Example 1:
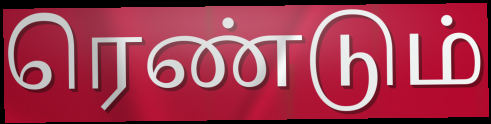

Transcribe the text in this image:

ரெண்டும்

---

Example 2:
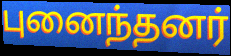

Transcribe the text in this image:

புனைந்தனர்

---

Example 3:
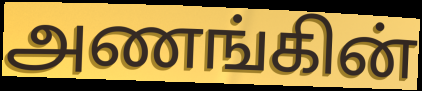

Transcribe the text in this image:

அணங்கின்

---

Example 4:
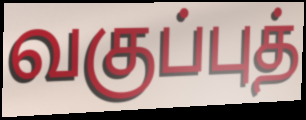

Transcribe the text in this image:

வகுப்புத்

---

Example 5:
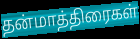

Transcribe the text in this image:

தன்மாத்திரைகள்